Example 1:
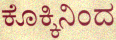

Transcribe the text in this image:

ಕೊಕ್ಕಿನಿಂದ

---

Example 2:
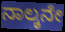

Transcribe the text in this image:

ನಾಲ್ಕನೇ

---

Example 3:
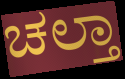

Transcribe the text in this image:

ಚಲ್ತಾ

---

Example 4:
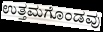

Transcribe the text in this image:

ಉತ್ತಮಗೊಂಡವು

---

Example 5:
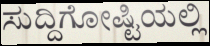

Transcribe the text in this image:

ಸುದ್ದಿಗೋಷ್ಟಿಯಲ್ಲಿ